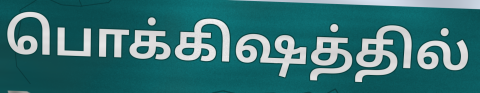
பொக்கிஷத்தில்